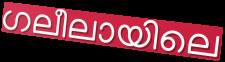
ഗലീലായിലെ